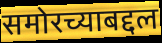
समोरच्याबद्दल